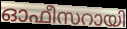
ഓഫീസറായി